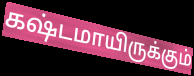
கஷ்டமாயிருக்கும்